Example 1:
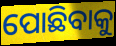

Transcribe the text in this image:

ପୋଛିବାକୁ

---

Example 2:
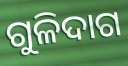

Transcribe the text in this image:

ଗୁଳିଦାଗ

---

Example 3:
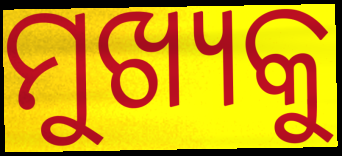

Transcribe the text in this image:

ମୁଖ୍ୟକୁ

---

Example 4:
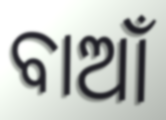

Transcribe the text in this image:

ବାଆଁ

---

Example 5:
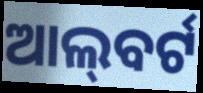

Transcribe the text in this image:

ଆଲ୍‌ବର୍ଟ